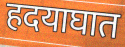
हदयाघात